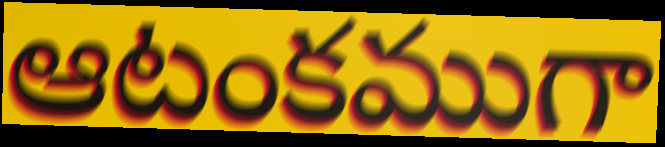
ఆటంకముగా